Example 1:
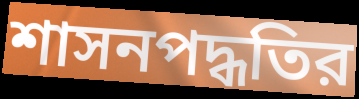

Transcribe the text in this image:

শাসনপদ্ধতির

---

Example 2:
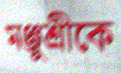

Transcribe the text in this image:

মঞ্জুশ্রীকে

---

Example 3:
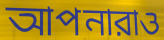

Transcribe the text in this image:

আপনারাও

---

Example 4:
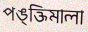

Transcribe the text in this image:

পঙ্‌ক্তিমালা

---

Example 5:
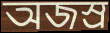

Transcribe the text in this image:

অজস্র